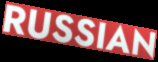
RUSSIAN